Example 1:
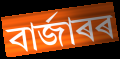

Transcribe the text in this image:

বাৰ্জাৰৰ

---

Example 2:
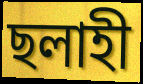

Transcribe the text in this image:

ছলাহী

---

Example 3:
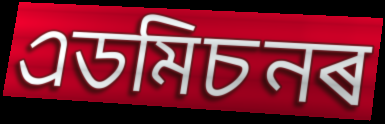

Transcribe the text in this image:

এডমিচনৰ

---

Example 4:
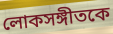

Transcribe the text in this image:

লোকসঙ্গীতকে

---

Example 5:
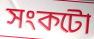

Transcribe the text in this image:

সংকটো